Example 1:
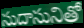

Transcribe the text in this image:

సుదాసునితో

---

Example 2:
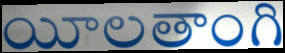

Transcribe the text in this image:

యీలతాంగి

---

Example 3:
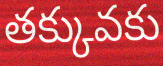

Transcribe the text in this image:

తక్కువకు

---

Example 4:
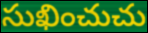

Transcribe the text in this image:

సుఖించుచు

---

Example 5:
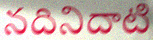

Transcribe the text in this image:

నదినిదాటి